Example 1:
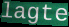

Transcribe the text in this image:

lagte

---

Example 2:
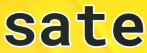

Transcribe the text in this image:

sate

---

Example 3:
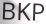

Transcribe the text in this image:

BKP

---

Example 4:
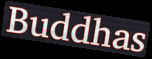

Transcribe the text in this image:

Buddhas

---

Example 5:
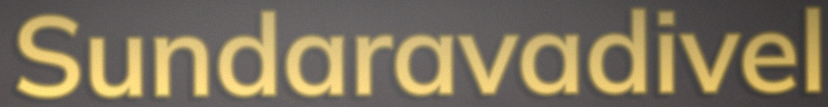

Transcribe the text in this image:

Sundaravadivel